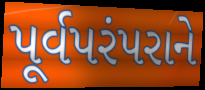
પૂર્વપરંપરાને